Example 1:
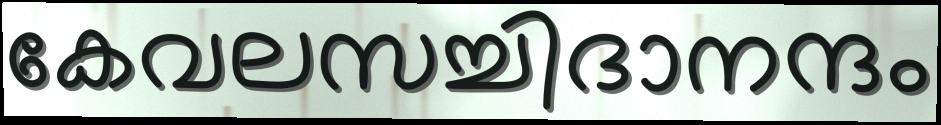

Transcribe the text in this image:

കേവലസച്ചിദാനന്ദം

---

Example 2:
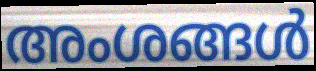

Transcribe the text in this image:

അംശങ്ങൾ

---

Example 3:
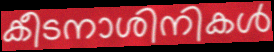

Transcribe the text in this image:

കീടനാശിനികൾ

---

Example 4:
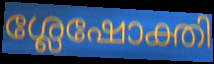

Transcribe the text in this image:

ശ്ലേഷോക്തി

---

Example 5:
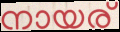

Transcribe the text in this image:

നായര്